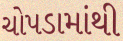
ચોપડામાંથી